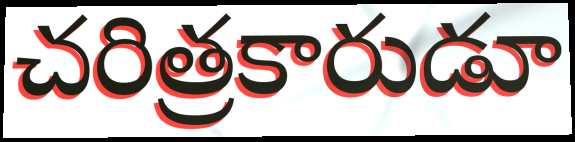
చరిత్రకారుడూ